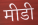
मीडी